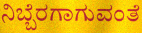
ನಿಬ್ಬೆರಗಾಗುವಂತೆ